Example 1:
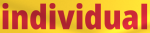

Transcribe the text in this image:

individual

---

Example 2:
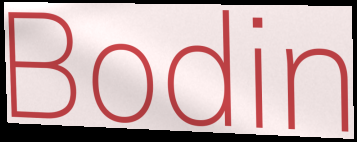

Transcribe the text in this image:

Bodin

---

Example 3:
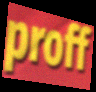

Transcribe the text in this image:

proff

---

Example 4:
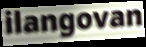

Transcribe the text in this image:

ilangovan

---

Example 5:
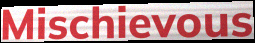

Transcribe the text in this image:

Mischievous